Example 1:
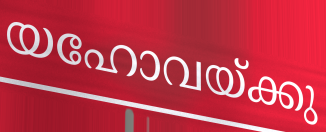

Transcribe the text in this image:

യഹോവയ്ക്കു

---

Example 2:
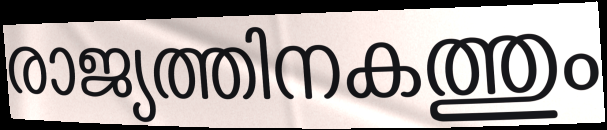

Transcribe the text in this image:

രാജ്യത്തിനകത്തും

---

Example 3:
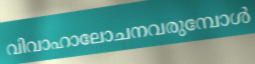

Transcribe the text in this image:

വിവാഹാലോചനവരുമ്പോൾ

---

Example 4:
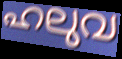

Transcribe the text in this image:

ഹലുവ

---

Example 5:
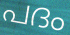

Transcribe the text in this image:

പദം